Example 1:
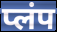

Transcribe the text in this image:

प्लंप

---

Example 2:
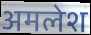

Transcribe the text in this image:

अमलेश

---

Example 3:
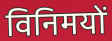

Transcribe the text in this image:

विनिमयों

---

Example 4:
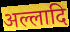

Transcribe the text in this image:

अल्लादि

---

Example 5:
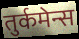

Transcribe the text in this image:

तुर्कमेन्स